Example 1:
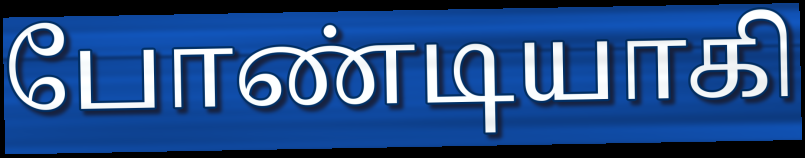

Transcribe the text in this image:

போண்டியாகி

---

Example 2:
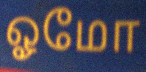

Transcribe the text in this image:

ஓமோ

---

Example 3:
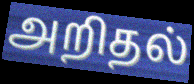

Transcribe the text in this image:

அறிதல்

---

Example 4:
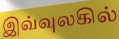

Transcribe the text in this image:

இவ்வுலகில்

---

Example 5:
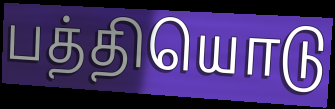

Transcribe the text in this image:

பத்தியொடு